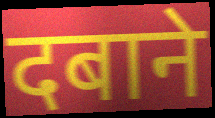
दबाने